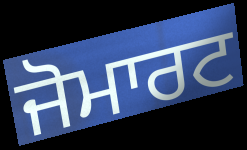
ਜੋਮਾਰਟ